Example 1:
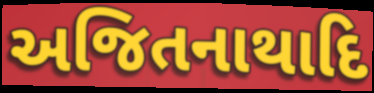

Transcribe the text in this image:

અજિતનાથાદિ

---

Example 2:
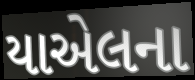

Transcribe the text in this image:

યાએલના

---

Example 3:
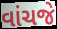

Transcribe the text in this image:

વાંચજે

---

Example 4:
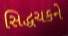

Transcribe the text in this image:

સિદ્ધચકને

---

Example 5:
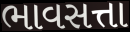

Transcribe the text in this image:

ભાવસત્તા